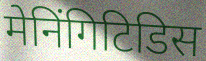
मेनिंगिटिडिस